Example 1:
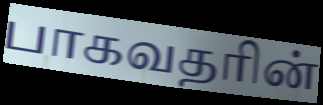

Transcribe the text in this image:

பாகவதரின்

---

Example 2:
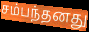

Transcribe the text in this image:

சம்பந்தனது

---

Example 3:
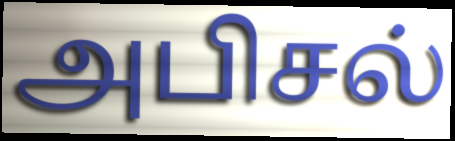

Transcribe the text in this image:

அபிசல்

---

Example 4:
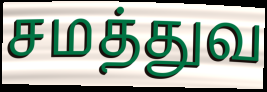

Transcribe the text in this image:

சமத்துவ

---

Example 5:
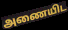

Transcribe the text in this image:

அணையிட